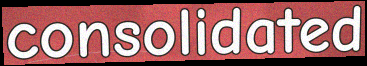
consolidated